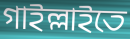
গাইল্লাইতে